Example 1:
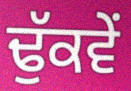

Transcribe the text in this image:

ਢੁੱਕਵੇਂ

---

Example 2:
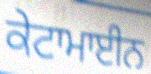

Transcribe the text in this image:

ਕੇਟਾਮਾਈਨ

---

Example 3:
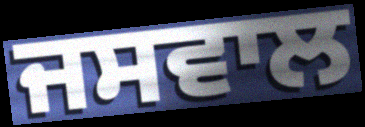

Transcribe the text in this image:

ਜਸਵਾਲ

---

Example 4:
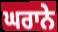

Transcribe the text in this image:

ਘਰਾਨੇ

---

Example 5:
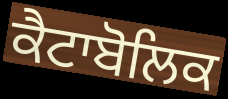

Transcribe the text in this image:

ਕੈਟਾਬੋਲਿਕ